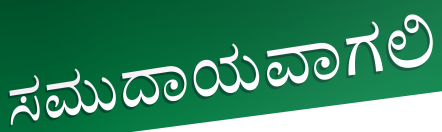
ಸಮುದಾಯವಾಗಲಿ